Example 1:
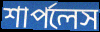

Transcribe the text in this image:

শার্পলেস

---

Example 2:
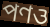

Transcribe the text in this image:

পণও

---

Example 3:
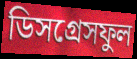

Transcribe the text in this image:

ডিসগ্রেসফুল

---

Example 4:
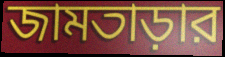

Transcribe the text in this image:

জামতাড়ার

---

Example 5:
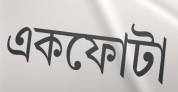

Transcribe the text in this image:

একফোটা